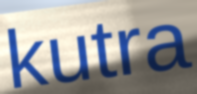
kutra